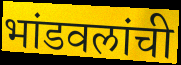
भांडवलांची